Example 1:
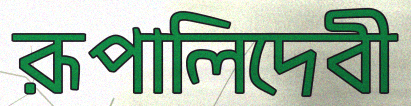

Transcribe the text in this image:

রূপালিদেবী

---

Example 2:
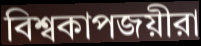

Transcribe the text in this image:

বিশ্বকাপজয়ীরা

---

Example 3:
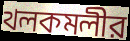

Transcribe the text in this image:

থলকমলীর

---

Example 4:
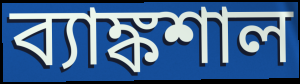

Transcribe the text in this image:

ব্যাঙ্কশাল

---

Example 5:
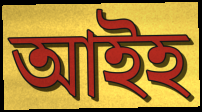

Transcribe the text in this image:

আইহ